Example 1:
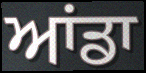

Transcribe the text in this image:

ਆਂਡਾ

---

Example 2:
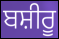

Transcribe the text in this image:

ਬਸ਼ੀਰੂ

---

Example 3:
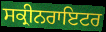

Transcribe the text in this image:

ਸਕ੍ਰੀਨਰਾਇਟਰ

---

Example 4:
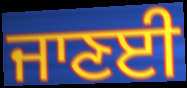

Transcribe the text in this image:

ਜਾਣਈ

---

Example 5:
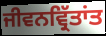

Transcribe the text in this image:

ਜੀਵਨਵ੍ਰਿੱਤਾਂਤ